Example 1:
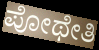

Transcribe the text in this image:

ಪೋಥೇತಿ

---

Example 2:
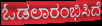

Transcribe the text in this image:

ಓಡಲಾರಂಭಿಸಿದೆ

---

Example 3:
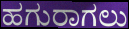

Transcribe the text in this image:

ಹಗುರಾಗಲು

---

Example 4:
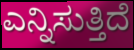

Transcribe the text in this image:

ಎನ್ನಿಸುತ್ತಿದೆ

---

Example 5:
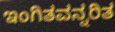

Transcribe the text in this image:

ಇಂಗಿತವನ್ನರಿತ